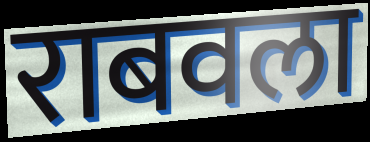
राबवला